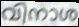
വിനാശ